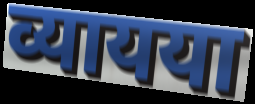
व्यायया